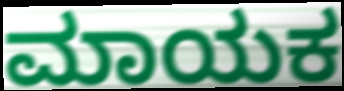
ಮಾಯಕ